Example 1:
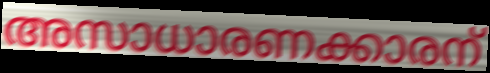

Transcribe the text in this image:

അസാധാരണക്കാരന്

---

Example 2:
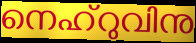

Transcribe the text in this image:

നെഹ്റുവിനു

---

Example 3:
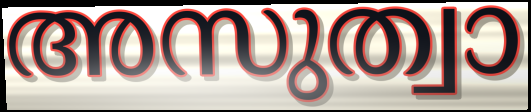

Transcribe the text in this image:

അസുത്വാ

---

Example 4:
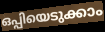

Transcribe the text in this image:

ഒപ്പിയെടുക്കാം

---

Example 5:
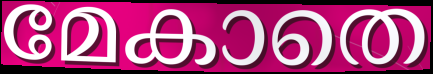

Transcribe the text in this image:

മേകാതെ